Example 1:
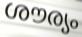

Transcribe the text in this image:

ശൗര്യം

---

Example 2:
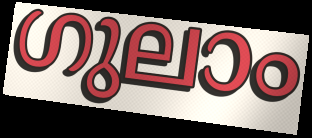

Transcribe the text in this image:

ഗുലാം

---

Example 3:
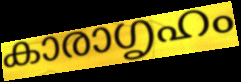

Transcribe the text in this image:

കാരാഗൃഹം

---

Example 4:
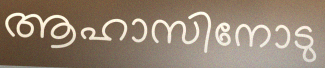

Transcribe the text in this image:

ആഹാസിനോടു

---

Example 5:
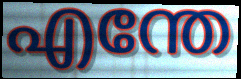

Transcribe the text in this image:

എന്തേ